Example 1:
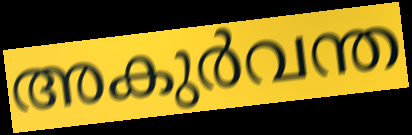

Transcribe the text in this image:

അകുർവന്ത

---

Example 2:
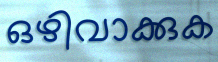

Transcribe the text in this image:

ഒഴിവാക്കുക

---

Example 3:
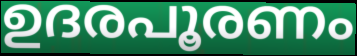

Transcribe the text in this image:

ഉദരപൂരണം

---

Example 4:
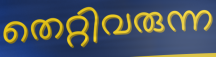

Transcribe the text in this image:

തെറ്റിവരുന്ന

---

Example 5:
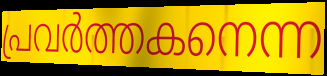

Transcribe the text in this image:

പ്രവർത്തകനെന്ന